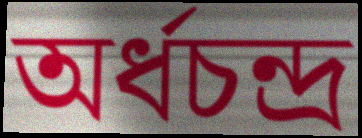
অর্ধচন্দ্র